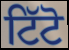
ਟਿੱਟੋ